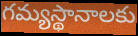
గమ్యస్థానాలకు